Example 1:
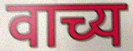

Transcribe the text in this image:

वाच्य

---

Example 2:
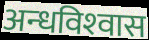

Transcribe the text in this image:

अन्‍धविश्‍वास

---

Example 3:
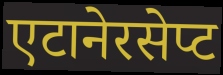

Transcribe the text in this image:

एटानेरसेप्ट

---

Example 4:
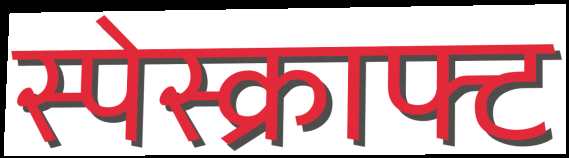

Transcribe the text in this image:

स्पेस्क्राफ्ट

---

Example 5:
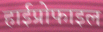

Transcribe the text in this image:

हाईप्रोफाइल